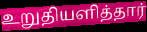
உறுதியளித்தார்